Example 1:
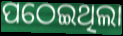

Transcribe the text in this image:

ପଠେଇଥିଲା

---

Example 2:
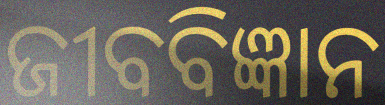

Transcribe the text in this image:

ଜୀବବିଜ୍ଞାନ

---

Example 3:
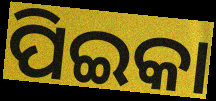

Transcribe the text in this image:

ପିଇକା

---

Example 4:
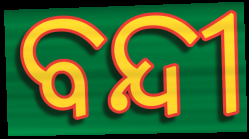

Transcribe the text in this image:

ବନ୍ଦୀ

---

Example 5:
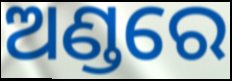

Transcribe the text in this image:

ଅଣ୍ଡରେ